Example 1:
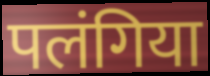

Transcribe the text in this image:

पलंगिया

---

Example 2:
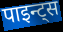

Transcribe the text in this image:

पाइन्ट्स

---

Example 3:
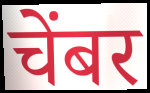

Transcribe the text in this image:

चेंबर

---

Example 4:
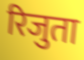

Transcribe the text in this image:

रिजुता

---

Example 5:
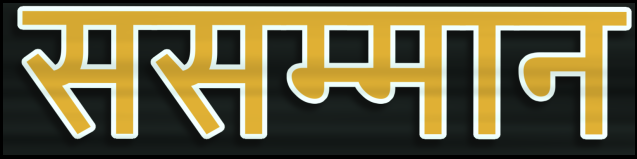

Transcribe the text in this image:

ससम्मान